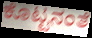
ಕೊಟ್ಟನಂತೆ